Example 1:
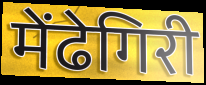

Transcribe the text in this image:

मेंढेगिरी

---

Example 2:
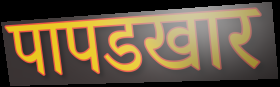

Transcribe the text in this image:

पापडखार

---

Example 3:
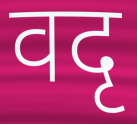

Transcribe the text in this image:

वदृ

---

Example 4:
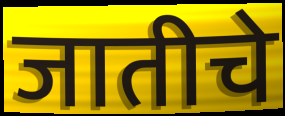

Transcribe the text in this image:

जातीचे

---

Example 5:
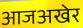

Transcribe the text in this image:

आजअखेर